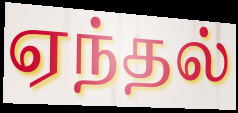
ஏந்தல்